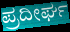
ಪ್ರದೀರ್ಘ